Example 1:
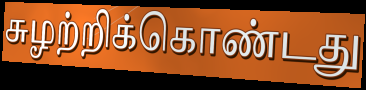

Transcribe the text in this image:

சுழற்றிக்கொண்டது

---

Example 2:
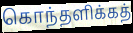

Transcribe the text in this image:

கொந்தளிக்கத்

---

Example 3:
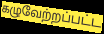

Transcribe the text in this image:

கழுவேற்றப்பட்ட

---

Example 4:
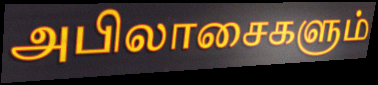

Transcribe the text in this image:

அபிலாசைகளும்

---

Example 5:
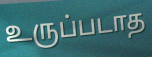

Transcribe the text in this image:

உருப்படாத